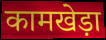
कामखेड़ा